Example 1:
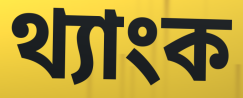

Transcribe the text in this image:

থ্যাংক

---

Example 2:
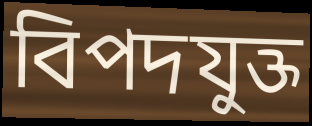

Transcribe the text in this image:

বিপদযুক্ত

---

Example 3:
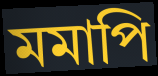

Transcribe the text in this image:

মমাপি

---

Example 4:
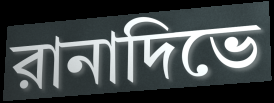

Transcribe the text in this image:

রানাদিভে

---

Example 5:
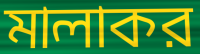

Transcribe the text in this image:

মালাকর